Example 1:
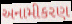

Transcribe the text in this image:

અનામીકરણ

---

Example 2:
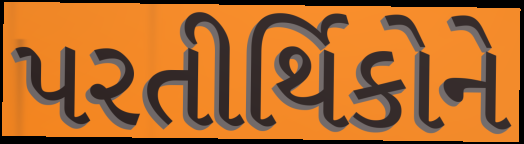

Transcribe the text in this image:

પરતીર્થિકોને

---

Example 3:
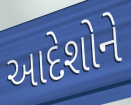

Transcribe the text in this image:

આદેશોને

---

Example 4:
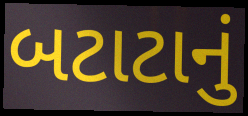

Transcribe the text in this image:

બટાટાનું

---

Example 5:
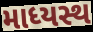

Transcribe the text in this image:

માધ્યસ્થ